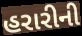
હરારીની